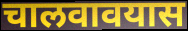
चालवावयास